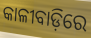
କାଳୀବାଡ଼ିରେ